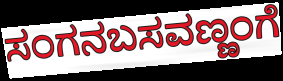
ಸಂಗನಬಸವಣ್ಣಂಗೆ